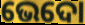
ଭେଦୋ